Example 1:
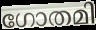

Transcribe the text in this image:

ഗോതമി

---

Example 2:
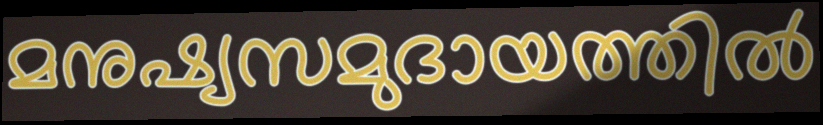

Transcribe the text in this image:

മനുഷ്യസമുദായത്തിൽ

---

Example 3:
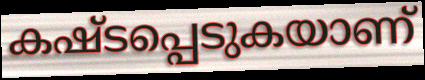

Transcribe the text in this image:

കഷ്ടപ്പെടുകയാണ്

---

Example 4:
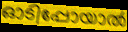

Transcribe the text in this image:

ഓടിപ്പോയാൽ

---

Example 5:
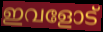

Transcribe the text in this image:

ഇവളോട്